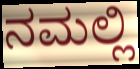
ನಮಲ್ಲಿ